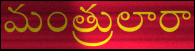
మంత్రులారా